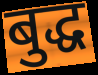
बुद्ध